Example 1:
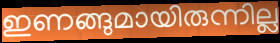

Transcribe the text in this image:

ഇണങ്ങുമായിരുന്നില്ല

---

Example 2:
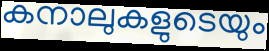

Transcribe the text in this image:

കനാലുകളുടെയും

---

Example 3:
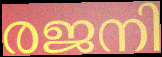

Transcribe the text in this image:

രജനി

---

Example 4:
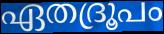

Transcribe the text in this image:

ഏതദ്രൂപം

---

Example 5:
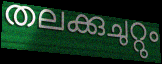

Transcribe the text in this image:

തലക്കുചുറ്റും